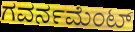
ಗವರ್ನಮೆಂಟ್